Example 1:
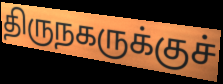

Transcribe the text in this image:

திருநகருக்குச்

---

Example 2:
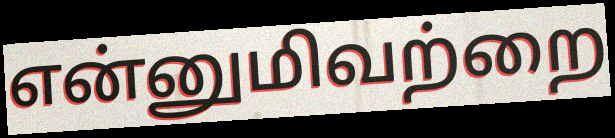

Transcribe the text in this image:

என்னுமிவற்றை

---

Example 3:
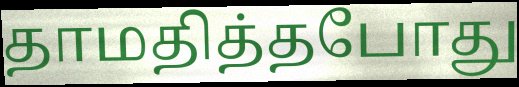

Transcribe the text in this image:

தாமதித்தபோது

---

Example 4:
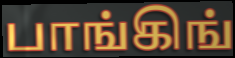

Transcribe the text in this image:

பாங்கிங்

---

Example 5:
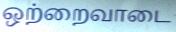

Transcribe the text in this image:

ஒற்றைவாடை